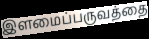
இளமைப்பருவத்தை